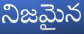
నిజమైన